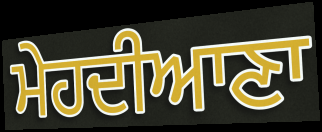
ਮੇਹਦੀਆਣਾ